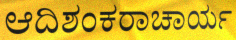
ಆದಿಶಂಕರಾಚಾರ್ಯ